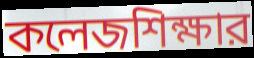
কলেজশিক্ষার